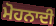
ਮੋਹਨਾਦੀ